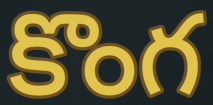
కొంగ